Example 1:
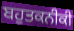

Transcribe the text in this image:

ਬਹੁਤਕਨੀਕੀ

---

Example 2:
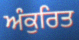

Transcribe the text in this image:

ਅੰਕੁਰਿਤ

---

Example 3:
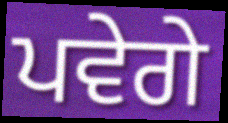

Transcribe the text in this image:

ਪਵੇਗੇ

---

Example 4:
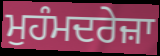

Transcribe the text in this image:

ਮੁਹੰਮਦਰੇਜ਼ਾ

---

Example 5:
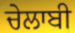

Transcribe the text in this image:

ਚੇਲਾਬੀ